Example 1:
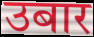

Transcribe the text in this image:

उबार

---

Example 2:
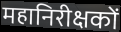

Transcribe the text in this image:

महानिरीक्षकों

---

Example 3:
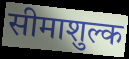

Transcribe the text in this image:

सीमाशुल्क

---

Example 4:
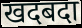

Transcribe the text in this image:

खदबदा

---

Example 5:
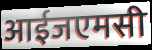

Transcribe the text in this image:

आईजएमसी